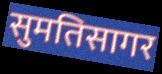
सुमतिसागर